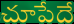
చూపేదే